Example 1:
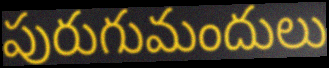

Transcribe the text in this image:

పురుగుమందులు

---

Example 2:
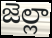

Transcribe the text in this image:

జెల్లా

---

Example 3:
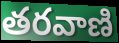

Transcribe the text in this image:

తరవాణి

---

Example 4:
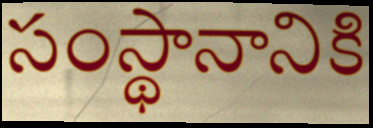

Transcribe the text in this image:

సంస్థానానికి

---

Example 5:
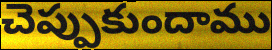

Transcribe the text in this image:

చెప్పుకుందాము